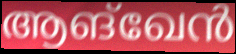
ആങ്ഖേൻ